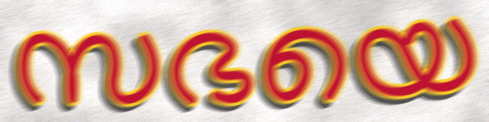
സഭയെ